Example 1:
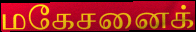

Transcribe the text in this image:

மகேசனைக்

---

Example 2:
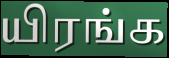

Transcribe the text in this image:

யிரங்க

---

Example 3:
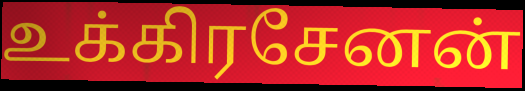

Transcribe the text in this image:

உக்கிரசேனன்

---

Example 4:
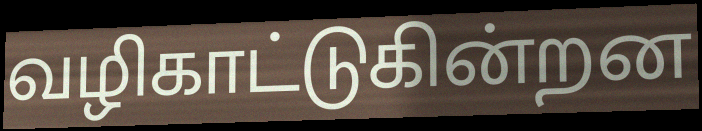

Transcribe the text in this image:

வழிகாட்டுகின்றன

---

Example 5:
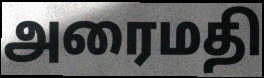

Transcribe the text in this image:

அரைமதி